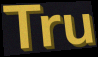
Tru